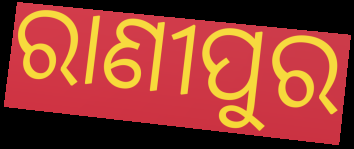
ରାଣୀପୁର